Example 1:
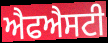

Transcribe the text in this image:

ਐਫਐਸਟੀ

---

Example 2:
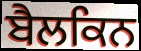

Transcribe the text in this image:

ਬੈਲਕਿਨ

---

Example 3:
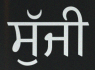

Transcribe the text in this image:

ਸੁੱਜੀ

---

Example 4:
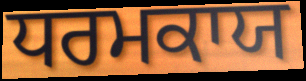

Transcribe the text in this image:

ਧਰਮਕਾਯ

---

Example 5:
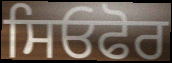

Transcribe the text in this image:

ਸਿਓਫੋਰ